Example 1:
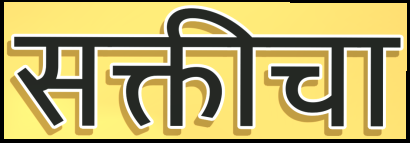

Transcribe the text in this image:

सक्तीचा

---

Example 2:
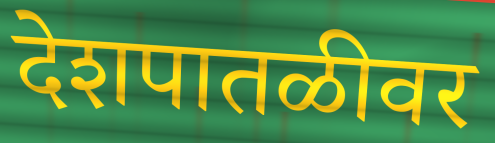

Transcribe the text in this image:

देशपातळीवर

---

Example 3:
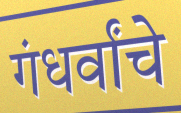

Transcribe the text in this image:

गंधर्वांचे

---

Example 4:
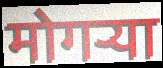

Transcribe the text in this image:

मोगऱ्या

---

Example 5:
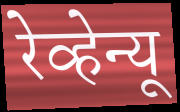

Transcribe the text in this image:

रेव्हेन्यू